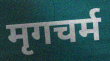
मृगचर्म